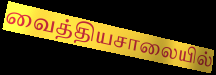
வைத்தியசாலையில்